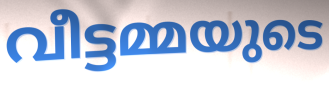
വീട്ടമ്മയുടെ